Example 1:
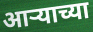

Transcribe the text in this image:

आऱ्याच्या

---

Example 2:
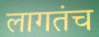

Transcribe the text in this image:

लागतंच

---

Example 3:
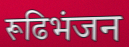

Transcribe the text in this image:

रूढिभंजन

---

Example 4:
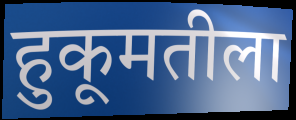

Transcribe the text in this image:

हुकूमतीला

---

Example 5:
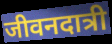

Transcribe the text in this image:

जीवनदात्री